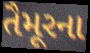
તૈમૂરના